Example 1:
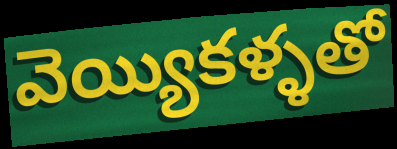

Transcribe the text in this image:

వెయ్యికళ్ళతో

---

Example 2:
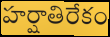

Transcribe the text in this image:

హర్షాతిరేకం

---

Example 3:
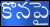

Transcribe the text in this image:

కొనపై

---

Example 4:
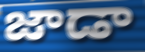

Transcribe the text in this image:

జాడా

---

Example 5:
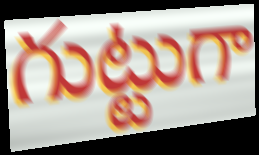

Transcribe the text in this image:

గుట్టుగా